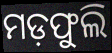
ମଡ଼ଫୁଲି